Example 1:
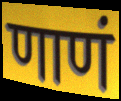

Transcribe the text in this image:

णाणं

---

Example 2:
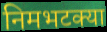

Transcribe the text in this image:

निमभटक्या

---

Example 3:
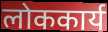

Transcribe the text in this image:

लोककार्य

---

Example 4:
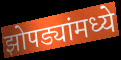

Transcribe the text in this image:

झोपड्यांमध्ये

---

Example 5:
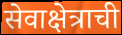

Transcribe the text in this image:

सेवाक्षेत्राची